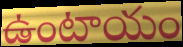
ఉంటాయం